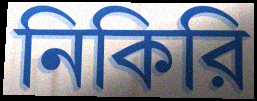
নিকিরি